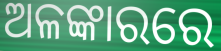
ଅଳଙ୍କାରରେ